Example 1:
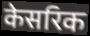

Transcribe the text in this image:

केसरिक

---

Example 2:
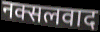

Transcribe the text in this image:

नक्सलवाद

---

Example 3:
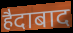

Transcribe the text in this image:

हैदाबाद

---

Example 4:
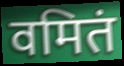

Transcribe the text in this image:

वमितं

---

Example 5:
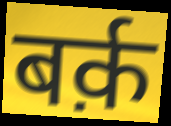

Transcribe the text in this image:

बर्क़